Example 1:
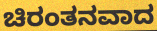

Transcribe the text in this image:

ಚಿರಂತನವಾದ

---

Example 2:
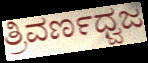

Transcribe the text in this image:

ತ್ರಿವರ್ಣಧ್ವಜ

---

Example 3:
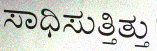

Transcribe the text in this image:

ಸಾಧಿಸುತ್ತಿತ್ತು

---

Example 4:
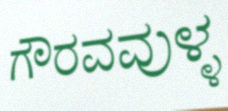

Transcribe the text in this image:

ಗೌರವವುಳ್ಳ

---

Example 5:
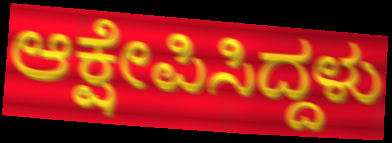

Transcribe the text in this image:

ಆಕ್ಷೇಪಿಸಿದ್ದಳು